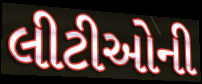
લીટીઓની